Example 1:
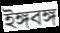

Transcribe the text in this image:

ইঙ্গবঙ্গ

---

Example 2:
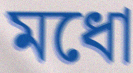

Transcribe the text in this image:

মধো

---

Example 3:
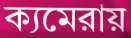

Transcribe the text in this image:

ক্যমেরায়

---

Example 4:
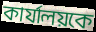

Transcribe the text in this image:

কার্যালয়কে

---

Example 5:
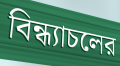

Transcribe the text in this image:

বিন্ধ্যাচলের